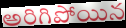
అరిగిపోయిన